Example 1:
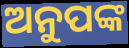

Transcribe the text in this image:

ଅନୁପଙ୍କ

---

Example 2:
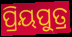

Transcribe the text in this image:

ପ୍ରିୟପୁତ୍ର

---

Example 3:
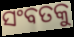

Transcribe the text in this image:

ସଂବତକୁ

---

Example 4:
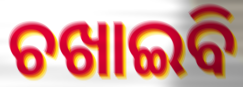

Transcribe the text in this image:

ଚଖାଇବି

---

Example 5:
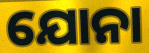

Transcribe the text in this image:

ଯୋନା